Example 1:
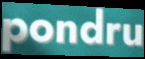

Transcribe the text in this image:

pondru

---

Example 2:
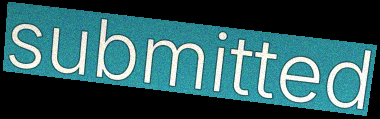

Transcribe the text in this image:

submitted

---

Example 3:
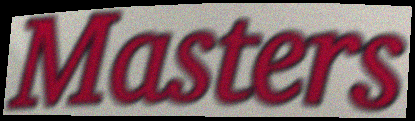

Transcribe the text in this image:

Masters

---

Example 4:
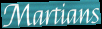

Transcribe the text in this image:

Martians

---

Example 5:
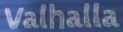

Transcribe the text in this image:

Valhalla